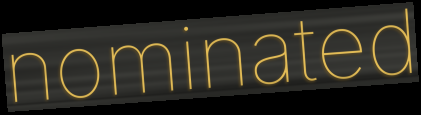
nominated